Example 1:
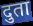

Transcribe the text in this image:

दुता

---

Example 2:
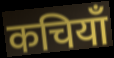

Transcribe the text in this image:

कचियाँ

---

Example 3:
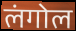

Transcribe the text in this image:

लंगोल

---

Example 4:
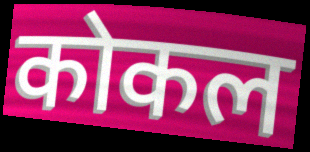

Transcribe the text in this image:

कोकल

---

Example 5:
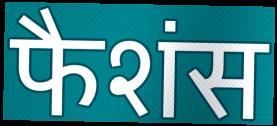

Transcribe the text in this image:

फैशंस